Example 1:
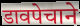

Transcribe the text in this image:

डावपेचाने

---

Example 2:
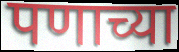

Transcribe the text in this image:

पणाच्या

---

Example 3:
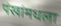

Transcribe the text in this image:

पंखांमधला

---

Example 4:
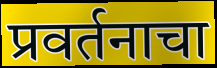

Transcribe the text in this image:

प्रवर्तनाचा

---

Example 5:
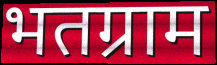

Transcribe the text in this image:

भतग्राम